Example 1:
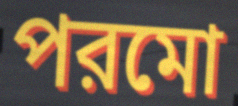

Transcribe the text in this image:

পরমো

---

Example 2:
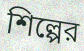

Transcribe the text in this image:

শিল্পের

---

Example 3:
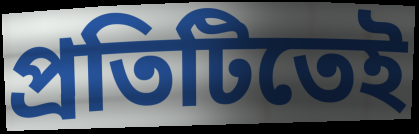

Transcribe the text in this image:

প্রতিটিতেই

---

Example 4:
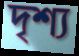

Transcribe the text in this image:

দৃশ্য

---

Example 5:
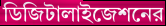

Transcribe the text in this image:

ডিজিটালাইজেশনের